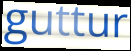
guttur